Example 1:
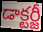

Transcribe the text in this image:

డాక్టర్జీ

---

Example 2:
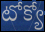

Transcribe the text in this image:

టోక్యో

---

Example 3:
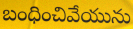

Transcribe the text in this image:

బంధించివేయును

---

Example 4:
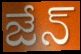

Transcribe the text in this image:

జేన్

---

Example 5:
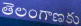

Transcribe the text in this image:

తెలంగాణకు